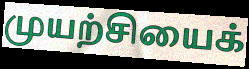
முயற்சியைக்